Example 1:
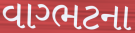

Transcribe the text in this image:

વાગ્ભટના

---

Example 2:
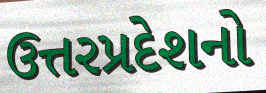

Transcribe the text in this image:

ઉત્તરપ્રદેશનો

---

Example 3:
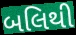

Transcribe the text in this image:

બલિથી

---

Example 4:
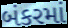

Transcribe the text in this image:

બંકરમાં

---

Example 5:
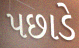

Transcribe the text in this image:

પછાડે